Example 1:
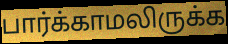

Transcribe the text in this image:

பார்க்காமலிருக்க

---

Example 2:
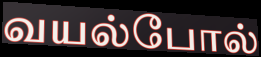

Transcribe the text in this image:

வயல்போல்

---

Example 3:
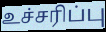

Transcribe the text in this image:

உச்சரிப்பு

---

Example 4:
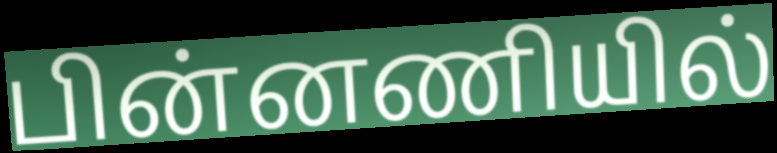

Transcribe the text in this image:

பின்னணியில்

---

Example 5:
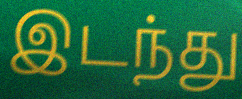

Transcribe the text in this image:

இடந்து